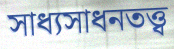
সাধ্যসাধনতত্ত্ব